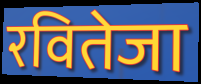
रवितेजा